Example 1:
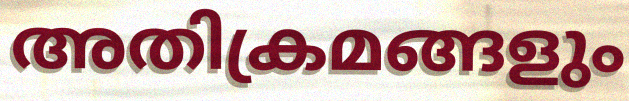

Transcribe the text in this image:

അതിക്രമങ്ങളും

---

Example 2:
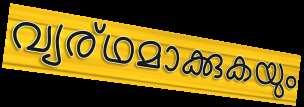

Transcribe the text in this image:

വ്യര്ഥമാക്കുകയും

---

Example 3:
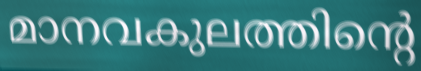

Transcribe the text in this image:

മാനവകുലത്തിന്റെ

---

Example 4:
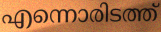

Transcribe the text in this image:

എന്നൊരിടത്ത്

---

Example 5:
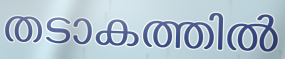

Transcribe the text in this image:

തടാകത്തിൽ